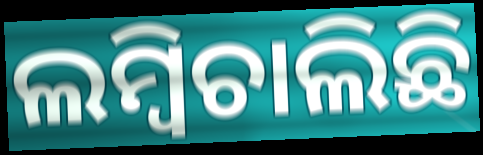
ଲମ୍ବିଚାଲିଛି